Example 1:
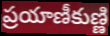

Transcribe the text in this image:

ప్రయాణీకుణ్ణి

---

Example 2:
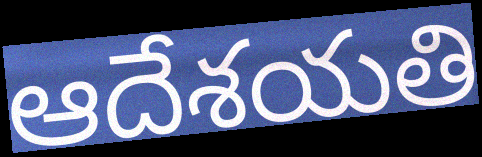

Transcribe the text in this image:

ఆదేశయతి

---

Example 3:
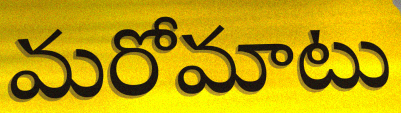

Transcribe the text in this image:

మరోమాటు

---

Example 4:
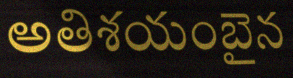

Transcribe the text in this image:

అతిశయంబైన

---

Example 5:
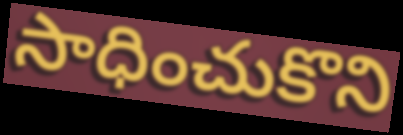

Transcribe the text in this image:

సాధించుకొని